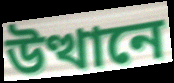
উত্থানে